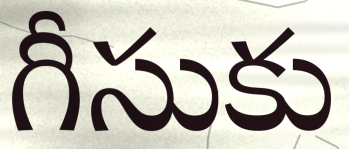
గీసుకు